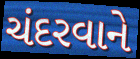
ચંદરવાને